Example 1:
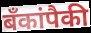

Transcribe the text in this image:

बँकांपैकी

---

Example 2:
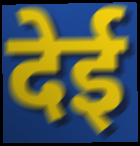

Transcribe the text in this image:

देई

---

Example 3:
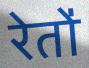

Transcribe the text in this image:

रेतो॑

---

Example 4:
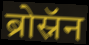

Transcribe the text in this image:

ब्रोस्नॅन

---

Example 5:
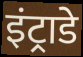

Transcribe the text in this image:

इंट्राडे